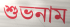
শুভনাম